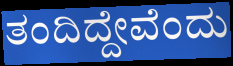
ತಂದಿದ್ದೇವೆಂದು